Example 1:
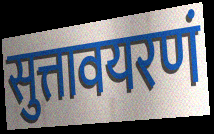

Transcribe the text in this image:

सुत्तावयरणं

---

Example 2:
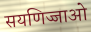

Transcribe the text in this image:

सयणिज्जाओ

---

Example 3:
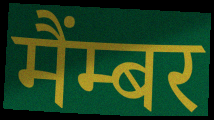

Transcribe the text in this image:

मैंम्बर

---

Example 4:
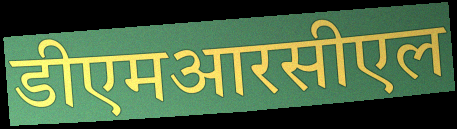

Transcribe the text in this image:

डीएमआरसीएल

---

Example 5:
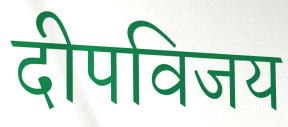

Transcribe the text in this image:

दीपविजय